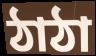
ঠাঠা